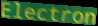
Electron